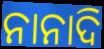
ନାନାଦି